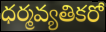
ధర్మవ్యతికరో